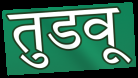
तुडवू